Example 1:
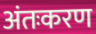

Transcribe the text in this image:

अंतःकरण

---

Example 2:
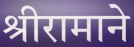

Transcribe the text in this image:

श्रीरामाने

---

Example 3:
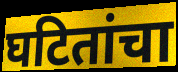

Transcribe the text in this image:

घटितांचा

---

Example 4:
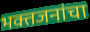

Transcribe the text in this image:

भक्तजनांचा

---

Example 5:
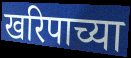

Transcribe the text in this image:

खरिपाच्या